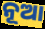
ନୂଆ